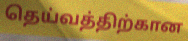
தெய்வத்திற்கான